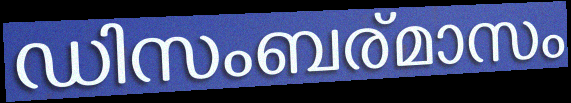
ഡിസംബര്മാസം